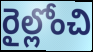
రైల్లోంచి